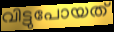
വിട്ടുപോയത്